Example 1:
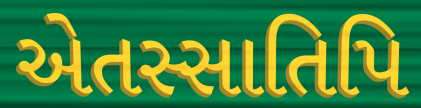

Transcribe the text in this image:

એતસ્સાતિપિ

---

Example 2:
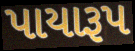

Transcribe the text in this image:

પાયારૂપ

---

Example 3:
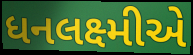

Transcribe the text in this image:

ધનલક્ષ્મીએ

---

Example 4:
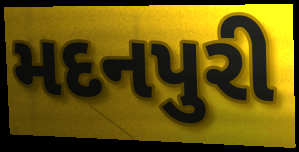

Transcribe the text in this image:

મદનપુરી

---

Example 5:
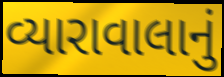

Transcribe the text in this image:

વ્યારાવાલાનું